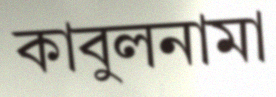
কাবুলনামা